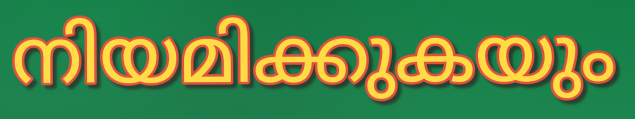
നിയമിക്കുകയും